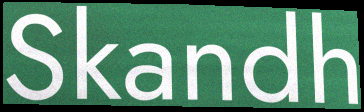
Skandh